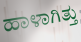
ಹಾಳಾಗಿತ್ತು